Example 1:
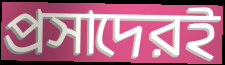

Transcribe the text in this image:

প্রসাদেরই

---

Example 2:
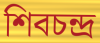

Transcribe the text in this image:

শিবচন্দ্র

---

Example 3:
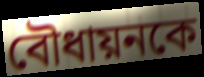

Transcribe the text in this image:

বৌধায়নকে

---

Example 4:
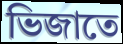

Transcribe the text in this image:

ভিজাতে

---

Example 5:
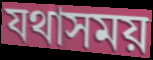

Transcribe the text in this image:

যথাসময়